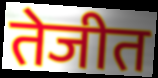
तेजीत